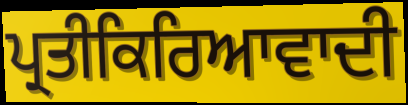
ਪ੍ਰਤੀਕਿਰਿਆਵਾਦੀ